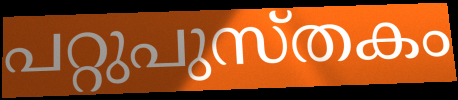
പറ്റുപുസ്തകം